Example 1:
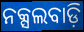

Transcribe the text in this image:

ନକ୍ସଲବାଡ଼ି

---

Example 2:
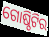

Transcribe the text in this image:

ଗୋଷ୍ଠିଟିର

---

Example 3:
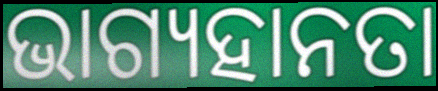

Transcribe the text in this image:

ଭାଗ୍ୟହାନତା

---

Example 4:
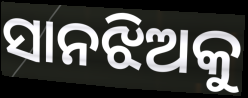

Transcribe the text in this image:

ସାନଝିଅକୁ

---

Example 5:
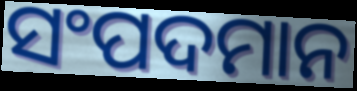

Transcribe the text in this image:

ସଂପଦମାନ